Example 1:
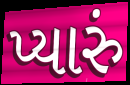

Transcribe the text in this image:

પ્યારું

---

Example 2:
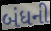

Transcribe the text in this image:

બંધની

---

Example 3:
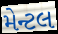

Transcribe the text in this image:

મેન્ટલ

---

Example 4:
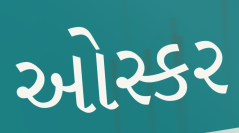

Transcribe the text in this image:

ઓસ્કર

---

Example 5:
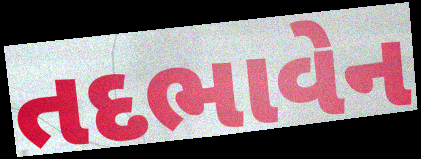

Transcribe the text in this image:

તદભાવેન